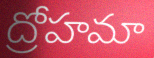
ద్రోహమా